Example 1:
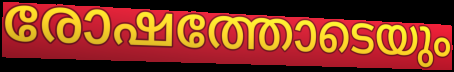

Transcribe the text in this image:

രോഷത്തോടെയും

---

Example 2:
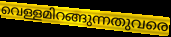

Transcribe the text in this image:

വെള്ളമിറങ്ങുന്നതുവരെ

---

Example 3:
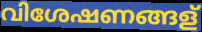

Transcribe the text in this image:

വിശേഷണങ്ങള്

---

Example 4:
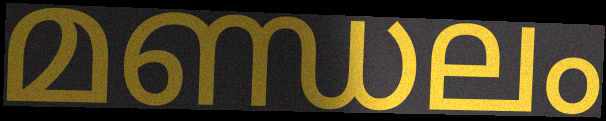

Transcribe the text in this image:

മണ്ഡലം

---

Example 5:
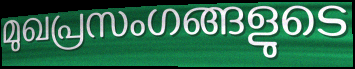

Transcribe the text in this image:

മുഖപ്രസംഗങ്ങളുടെ